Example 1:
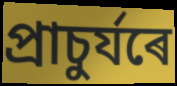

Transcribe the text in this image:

প্ৰাচুৰ্যৰে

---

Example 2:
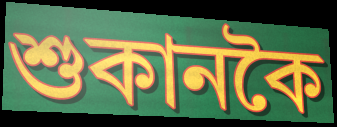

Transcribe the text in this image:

শুকানকৈ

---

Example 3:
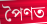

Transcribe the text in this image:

পৈণত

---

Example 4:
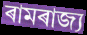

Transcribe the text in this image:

ৰামৰাজ্য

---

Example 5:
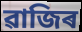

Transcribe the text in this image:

ৱাজিৰ